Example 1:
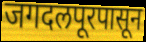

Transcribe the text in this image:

जगदलपूरपासून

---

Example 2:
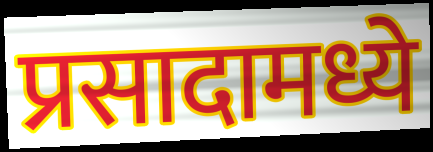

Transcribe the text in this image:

प्रसादामध्ये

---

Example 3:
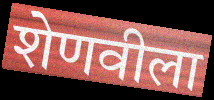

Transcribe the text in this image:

शेणवीला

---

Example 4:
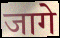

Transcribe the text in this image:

जागे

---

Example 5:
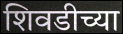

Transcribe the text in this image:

शिवडीच्या